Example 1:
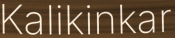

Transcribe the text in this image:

Kalikinkar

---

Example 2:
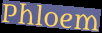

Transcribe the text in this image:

Phloem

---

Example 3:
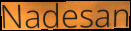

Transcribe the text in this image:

Nadesan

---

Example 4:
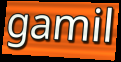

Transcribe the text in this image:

gamil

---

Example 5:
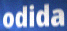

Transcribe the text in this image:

odida